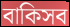
বাকিসব